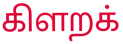
கிளறக்